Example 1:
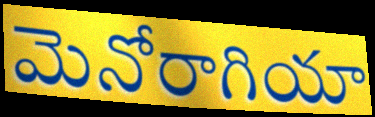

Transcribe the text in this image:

మెనోరాగియా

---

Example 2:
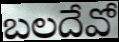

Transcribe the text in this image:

బలదేవో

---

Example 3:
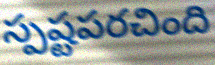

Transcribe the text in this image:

స్పష్టపరచింది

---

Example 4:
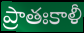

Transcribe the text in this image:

ప్రాతఃకాళీ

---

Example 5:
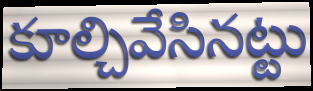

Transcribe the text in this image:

కూల్చివేసినట్టు